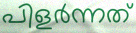
പിളർന്നത്